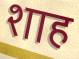
शाह